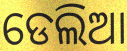
ଡେଲିଆ